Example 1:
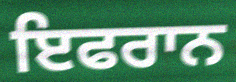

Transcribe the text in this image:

ਇਫਰਾਨ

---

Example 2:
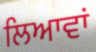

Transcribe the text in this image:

ਲਿਆਵਾਂ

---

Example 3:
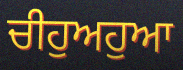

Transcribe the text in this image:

ਚੀਹੁਅਹੁਆ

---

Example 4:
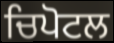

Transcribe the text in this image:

ਚਿਪੋਟਲ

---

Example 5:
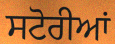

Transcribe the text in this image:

ਸਟੋਰੀਆਂ